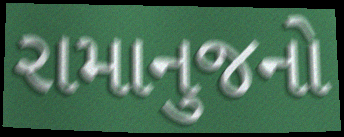
રામાનુજનો